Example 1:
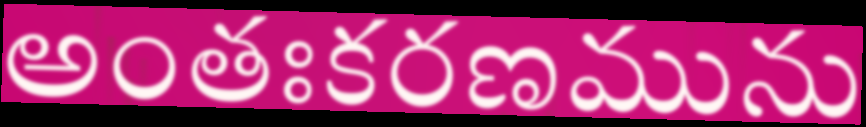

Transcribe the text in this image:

అంతఃకరణమును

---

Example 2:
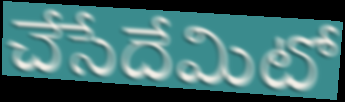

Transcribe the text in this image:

చేసేదేమిటో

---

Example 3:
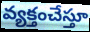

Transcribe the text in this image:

వ్యక్తంచేస్తూ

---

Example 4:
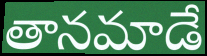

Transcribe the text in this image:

తానమాడే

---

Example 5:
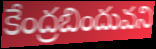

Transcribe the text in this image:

కేంద్రబిందువని